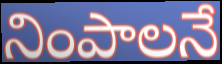
నింపాలనే